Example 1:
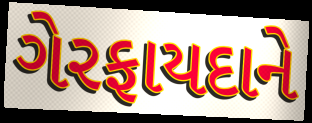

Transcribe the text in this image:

ગેરફાયદાને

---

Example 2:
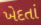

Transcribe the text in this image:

ખેદતાં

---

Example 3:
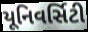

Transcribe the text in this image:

યૂનિવર્સિટી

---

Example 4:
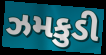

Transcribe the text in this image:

ઝમકુડી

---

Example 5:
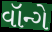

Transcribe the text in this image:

વૉન્ગે